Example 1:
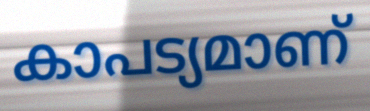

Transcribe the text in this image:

കാപട്യമാണ്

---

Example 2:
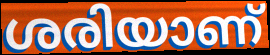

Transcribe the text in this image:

ശരിയാണ്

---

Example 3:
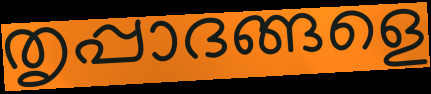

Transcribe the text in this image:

തൃപ്പാദങ്ങളെ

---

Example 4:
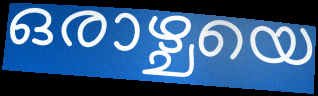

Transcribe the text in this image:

ഒരാഴ്ചയെ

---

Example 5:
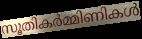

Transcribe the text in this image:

സൂതികർമ്മിണികൾ